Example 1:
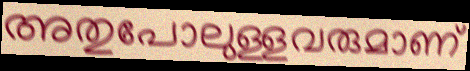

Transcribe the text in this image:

അതുപോലുള്ളവരുമാണ്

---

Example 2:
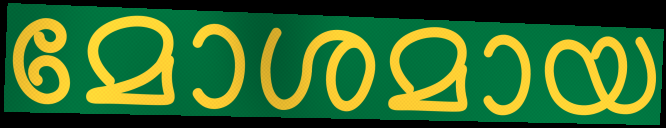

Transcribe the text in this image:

മോശമായ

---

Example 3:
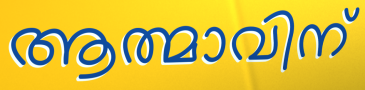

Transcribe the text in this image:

ആത്മാവിന്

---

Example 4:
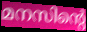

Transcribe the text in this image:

മനസിന്റെ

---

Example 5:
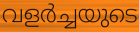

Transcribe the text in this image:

വളർച്ചയുടെ